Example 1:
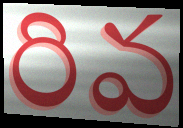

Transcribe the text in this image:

రివ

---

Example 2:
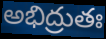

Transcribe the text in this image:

అభిద్రుతః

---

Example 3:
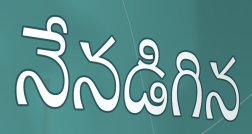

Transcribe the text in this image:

నేనడిగిన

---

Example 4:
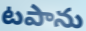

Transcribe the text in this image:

టపాను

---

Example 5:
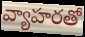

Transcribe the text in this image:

వ్యాహరతో